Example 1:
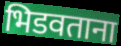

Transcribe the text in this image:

भिडवताना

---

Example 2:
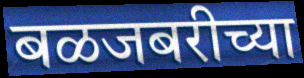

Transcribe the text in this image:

बळजबरीच्या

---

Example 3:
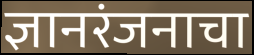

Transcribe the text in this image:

ज्ञानरंजनाचा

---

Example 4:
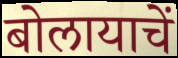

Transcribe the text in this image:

बोलायाचें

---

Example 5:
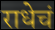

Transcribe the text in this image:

राधेचं